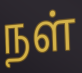
நள்